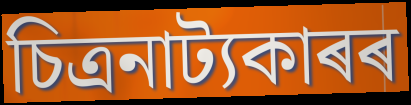
চিত্ৰনাট্যকাৰৰ